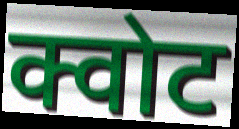
क्वोट